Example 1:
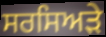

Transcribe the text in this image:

ਸਰਸਿਅੜੇ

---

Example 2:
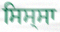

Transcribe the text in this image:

ਸਿਸ੍ਸਾ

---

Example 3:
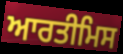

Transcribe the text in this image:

ਆਰਤੀਮਿਸ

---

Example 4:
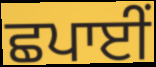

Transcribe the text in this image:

ਛਪਾਈਂ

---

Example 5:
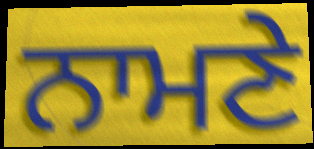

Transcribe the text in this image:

ਨਾਮਣੇ